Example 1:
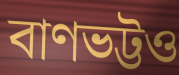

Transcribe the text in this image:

বাণভট্টও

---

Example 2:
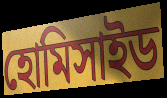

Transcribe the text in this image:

হোমিসাইড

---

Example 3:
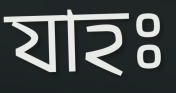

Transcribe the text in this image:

যাহঃ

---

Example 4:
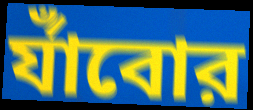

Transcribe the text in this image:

র্যাঁবোর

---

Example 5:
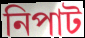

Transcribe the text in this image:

নিপাট